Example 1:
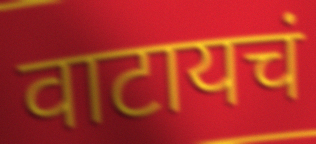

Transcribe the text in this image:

वाटायचं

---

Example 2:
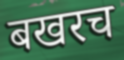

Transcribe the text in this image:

बखरच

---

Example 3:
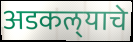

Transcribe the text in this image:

अडकल्याचे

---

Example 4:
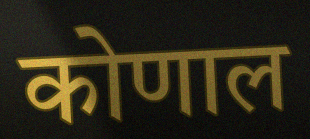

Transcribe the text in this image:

कोणाल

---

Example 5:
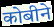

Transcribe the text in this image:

कोबीने